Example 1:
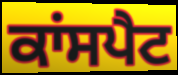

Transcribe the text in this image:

ਕਾਂਸਪੈਟ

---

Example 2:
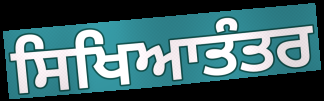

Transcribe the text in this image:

ਸਿਖਿਆਤੰਤਰ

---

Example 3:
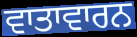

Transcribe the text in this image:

ਵਾਤਾਵਾਰਨ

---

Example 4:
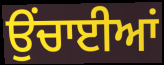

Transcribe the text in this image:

ਉਂਚਾਈਆਂ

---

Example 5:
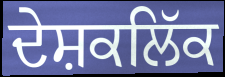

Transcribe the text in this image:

ਦੇਸ਼ਕਲਿੱਕ